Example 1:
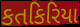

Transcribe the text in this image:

કતકિરિયા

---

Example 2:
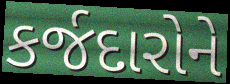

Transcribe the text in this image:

કર્જદારોને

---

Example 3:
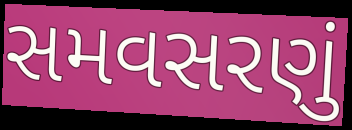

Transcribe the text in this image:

સમવસરણું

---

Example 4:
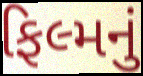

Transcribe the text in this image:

ફિલ્મનું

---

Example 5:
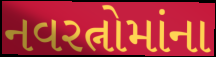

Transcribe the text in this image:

નવરત્નોમાંના